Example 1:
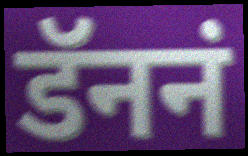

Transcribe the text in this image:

डॅननं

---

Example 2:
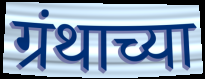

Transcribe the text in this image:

ग्रंथाच्या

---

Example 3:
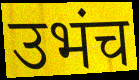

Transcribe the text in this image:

उभंच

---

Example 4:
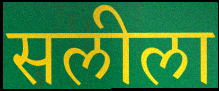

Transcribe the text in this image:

सलीला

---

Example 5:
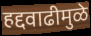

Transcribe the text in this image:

हद्दवाढीमुळे